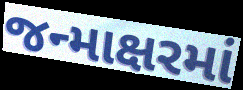
જન્માક્ષરમાં